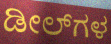
ಡೀಲ್‌ಗಳ